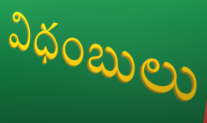
విధంబులు